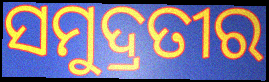
ସମୁଦ୍ରତୀର